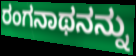
ರಂಗನಾಥನನ್ನು